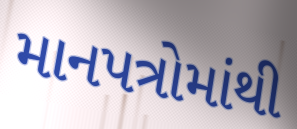
માનપત્રોમાંથી